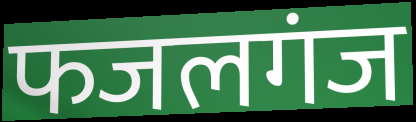
फजलगंज